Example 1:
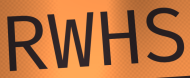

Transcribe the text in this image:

RWHS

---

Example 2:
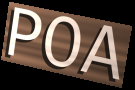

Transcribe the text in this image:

POA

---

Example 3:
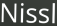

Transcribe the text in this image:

Nissl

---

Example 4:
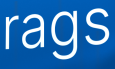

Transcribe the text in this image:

rags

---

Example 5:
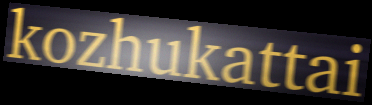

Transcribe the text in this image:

kozhukattai